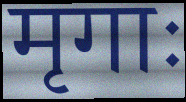
मृगाः